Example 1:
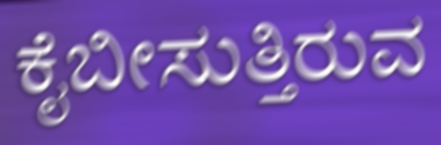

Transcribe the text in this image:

ಕೈಬೀಸುತ್ತಿರುವ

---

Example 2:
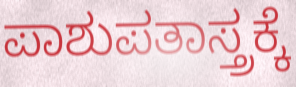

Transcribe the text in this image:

ಪಾಶುಪತಾಸ್ತ್ರಕ್ಕೆ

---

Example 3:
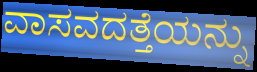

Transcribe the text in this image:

ವಾಸವದತ್ತೆಯನ್ನು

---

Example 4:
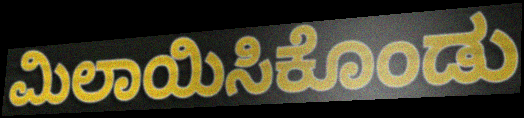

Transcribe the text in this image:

ಮಿಲಾಯಿಸಿಕೊಂಡು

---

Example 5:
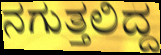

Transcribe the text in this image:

ನಗುತ್ತಲಿದ್ದ